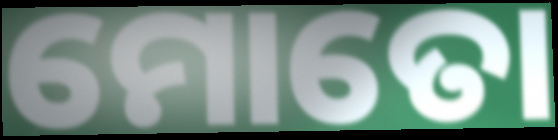
ମୋତୋ